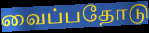
வைப்பதோடு